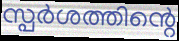
സ്പർശത്തിന്റെ